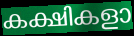
കക്ഷികളാ